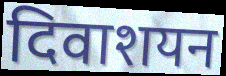
दिवाशयन